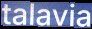
talavia